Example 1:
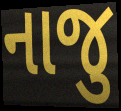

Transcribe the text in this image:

નાજુ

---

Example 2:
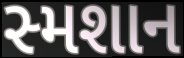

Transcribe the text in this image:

સ્મશાન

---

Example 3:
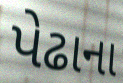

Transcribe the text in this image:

પેઢાના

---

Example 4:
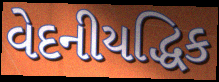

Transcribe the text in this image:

વેદનીયદ્ધિક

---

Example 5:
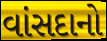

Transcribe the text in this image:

વાંસદાનો